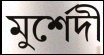
মুর্শেদী